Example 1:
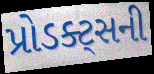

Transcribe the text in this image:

પ્રોડક્ટ્સની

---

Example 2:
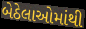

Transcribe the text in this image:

બેઠેલાઓમાંથી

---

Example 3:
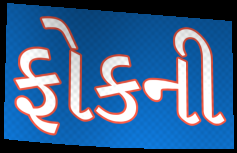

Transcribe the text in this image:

ફોકની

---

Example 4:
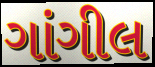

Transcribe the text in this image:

ગાંગીલ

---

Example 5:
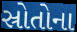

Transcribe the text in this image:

સ્રોતોના